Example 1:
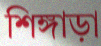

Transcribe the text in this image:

শিঙ্গাড়া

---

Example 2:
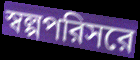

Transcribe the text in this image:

স্বল্পপরিসরে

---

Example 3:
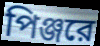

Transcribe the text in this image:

পিঞ্জরে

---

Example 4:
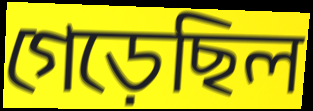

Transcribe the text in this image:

গেড়েছিল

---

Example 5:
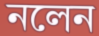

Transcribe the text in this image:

নলেন